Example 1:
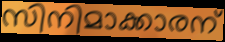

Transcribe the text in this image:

സിനിമാക്കാരന്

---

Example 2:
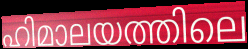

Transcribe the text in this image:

ഹിമാലയത്തിലെ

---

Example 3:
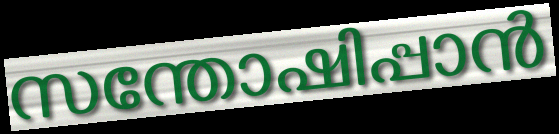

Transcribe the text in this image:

സന്തോഷിപ്പാൻ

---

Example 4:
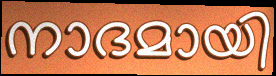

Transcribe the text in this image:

നാദമായി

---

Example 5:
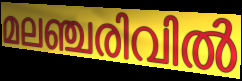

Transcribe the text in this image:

മലഞ്ചരിവിൽ